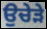
ਉਚੇੜੇ